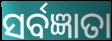
ସର୍ବଜ୍ଞାତା